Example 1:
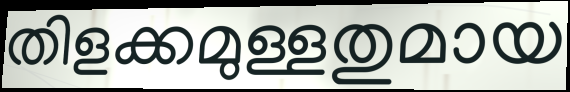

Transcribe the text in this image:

തിളക്കമുള്ളതുമായ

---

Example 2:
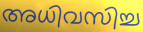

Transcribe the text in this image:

അധിവസിച്ച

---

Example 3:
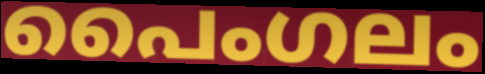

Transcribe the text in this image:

പൈംഗലം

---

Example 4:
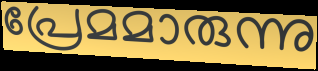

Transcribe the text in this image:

പ്രേമമാരുന്നു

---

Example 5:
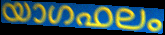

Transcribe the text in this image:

യാഗഫലം